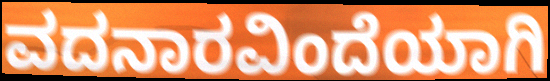
ವದನಾರವಿಂದೆಯಾಗಿ